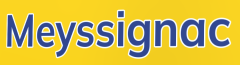
Meyssignac